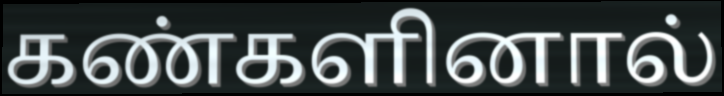
கண்களினால்